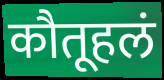
कौतूहलं